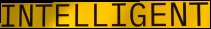
INTELLIGENT